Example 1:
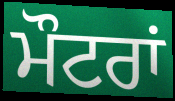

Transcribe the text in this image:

ਮੌਟਰਾਂ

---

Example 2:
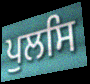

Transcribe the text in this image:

ਪੁਲਸਿ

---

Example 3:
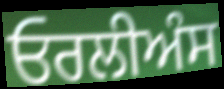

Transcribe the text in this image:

ਓਰਲੀਅੰਸ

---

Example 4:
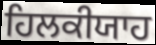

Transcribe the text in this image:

ਹਿਲਕੀਯਾਹ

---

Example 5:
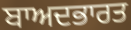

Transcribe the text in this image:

ਬਾਅਦਭਾਰਤ